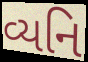
વ્યનિ